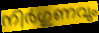
നിർഗുണവും